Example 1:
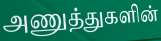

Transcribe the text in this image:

அணுத்துகளின்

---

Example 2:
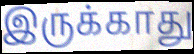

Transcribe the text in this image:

இருக்காது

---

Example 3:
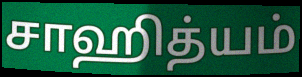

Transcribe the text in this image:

சாஹித்யம்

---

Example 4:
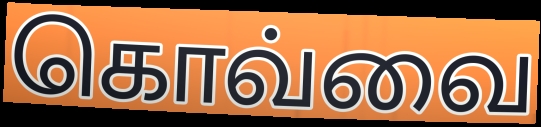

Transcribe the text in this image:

கொவ்வை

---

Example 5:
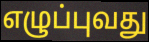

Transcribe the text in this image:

எழுப்புவது